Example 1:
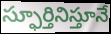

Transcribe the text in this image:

స్ఫూర్తినిస్తూనే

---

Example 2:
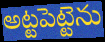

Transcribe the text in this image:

అట్టపెట్టెను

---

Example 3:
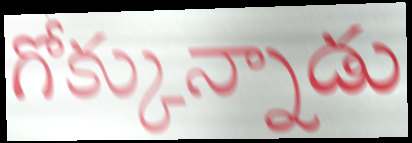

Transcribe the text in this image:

గోక్కున్నాడు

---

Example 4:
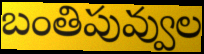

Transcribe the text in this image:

బంతిపువ్వుల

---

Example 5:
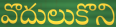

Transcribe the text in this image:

వొదులుకొని